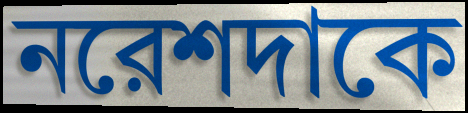
নরেশদাকে